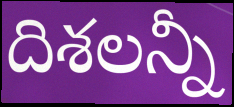
దిశలన్నీ